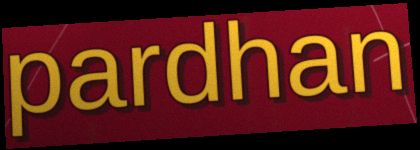
pardhan